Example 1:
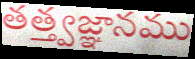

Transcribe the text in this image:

తత్త్వజ్ఞానము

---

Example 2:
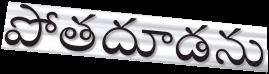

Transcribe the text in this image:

పోతదూడను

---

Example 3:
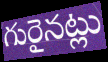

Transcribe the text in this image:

గురైనట్లు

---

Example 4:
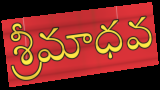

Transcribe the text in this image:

శ్రీమాధవ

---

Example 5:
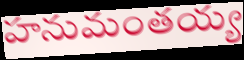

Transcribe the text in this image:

హనుమంతయ్య